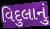
વિદુલાનું